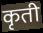
कृती